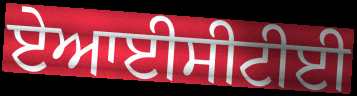
ਏਆਈਸੀਟੀਈ